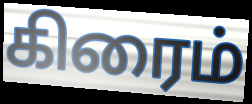
கிரைம்